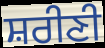
ਸ਼ਰੀਣੀ